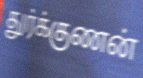
துர்க்குணன்